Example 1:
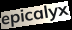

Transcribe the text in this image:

epicalyx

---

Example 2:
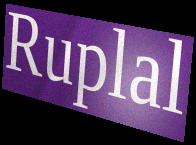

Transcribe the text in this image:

Ruplal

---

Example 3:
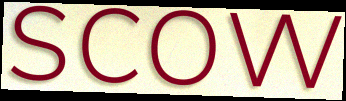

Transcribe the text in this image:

scow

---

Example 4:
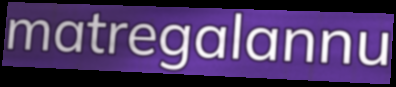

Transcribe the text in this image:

matregalannu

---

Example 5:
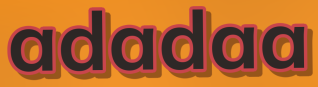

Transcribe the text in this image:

adadaa